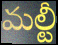
మల్టీ